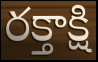
రక్తాక్షి